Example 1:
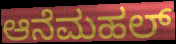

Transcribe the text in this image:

ಆನೆಮಹಲ್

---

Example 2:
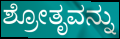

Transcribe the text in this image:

ಶ್ರೋತೃವನ್ನು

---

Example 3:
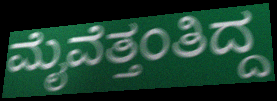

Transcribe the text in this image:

ಮೈವೆತ್ತಂತಿದ್ದ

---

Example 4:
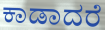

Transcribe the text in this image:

ಕಾಡಾದರೆ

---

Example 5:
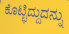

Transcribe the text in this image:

ಕೊಟ್ಟಿದ್ದುದನ್ನು